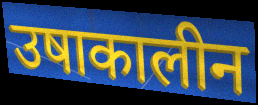
उषाकालीन